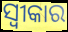
ସ୍ଵୀକାର